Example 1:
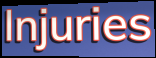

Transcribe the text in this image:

Injuries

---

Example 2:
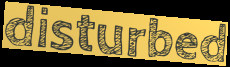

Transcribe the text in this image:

disturbed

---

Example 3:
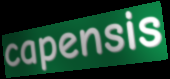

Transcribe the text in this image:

capensis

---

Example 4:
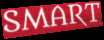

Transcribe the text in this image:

SMART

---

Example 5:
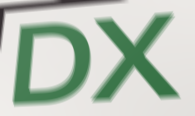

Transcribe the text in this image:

DX